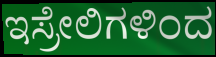
ಇಸ್ರೇಲಿಗಳಿಂದ